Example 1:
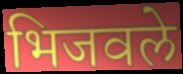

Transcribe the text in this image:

भिजवले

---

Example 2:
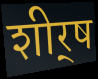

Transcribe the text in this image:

शीर्ष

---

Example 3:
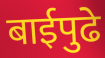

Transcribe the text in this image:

बाईपुढे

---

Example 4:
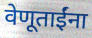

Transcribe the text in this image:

वेणूताईंना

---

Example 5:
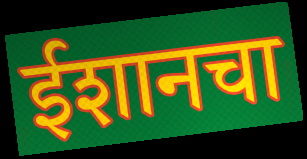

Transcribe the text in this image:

ईशानचा